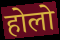
होलो